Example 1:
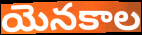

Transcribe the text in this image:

యెనకాల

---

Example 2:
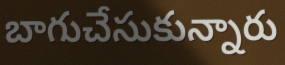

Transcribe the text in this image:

బాగుచేసుకున్నారు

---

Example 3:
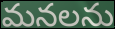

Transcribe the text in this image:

మనలను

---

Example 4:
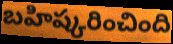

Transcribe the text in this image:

బహిష్కరించింది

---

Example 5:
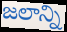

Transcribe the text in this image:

జలాన్ని